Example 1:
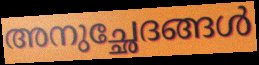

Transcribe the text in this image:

അനുച്ഛേദങ്ങൾ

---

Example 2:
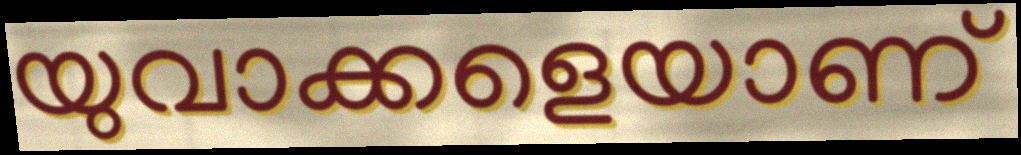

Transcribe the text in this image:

യുവാക്കളെയാണ്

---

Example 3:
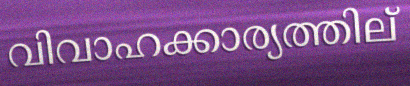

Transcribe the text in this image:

വിവാഹക്കാര്യത്തില്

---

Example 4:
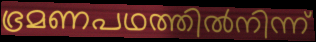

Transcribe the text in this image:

ഭ്രമണപഥത്തിൽനിന്ന്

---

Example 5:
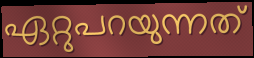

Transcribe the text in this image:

ഏറ്റുപറയുന്നത്